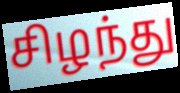
சிழந்து